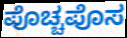
ಪೊಚ್ಚಪೊಸ